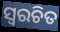
ସ୍ଵରଚିତ